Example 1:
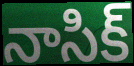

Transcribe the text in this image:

నాసిక్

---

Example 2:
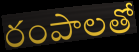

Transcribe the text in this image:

రంపాలతో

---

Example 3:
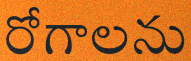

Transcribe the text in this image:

రోగాలను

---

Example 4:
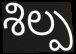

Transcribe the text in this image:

శిల్ప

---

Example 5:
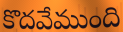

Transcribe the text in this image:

కొదవేముంది